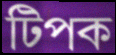
টিপক